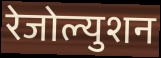
रेजोल्युशन